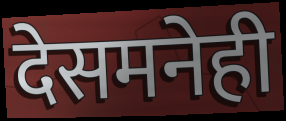
देसमनेही